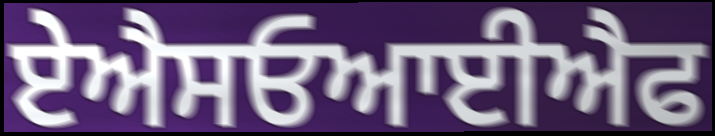
ਏਐਸਓਆਈਐਫ